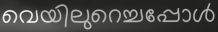
വെയിലുറെച്ചപ്പോൾ